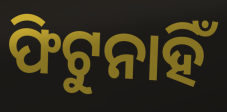
ଫିଟୁନାହିଁ